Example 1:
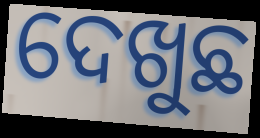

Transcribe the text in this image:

ଦେଖୁଛ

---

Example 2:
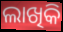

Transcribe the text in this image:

ଲାଖିକି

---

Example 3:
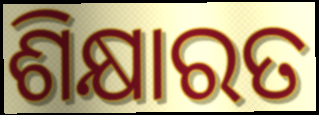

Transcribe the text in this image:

ଶିକ୍ଷାରତ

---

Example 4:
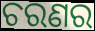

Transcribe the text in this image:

ଚରଣର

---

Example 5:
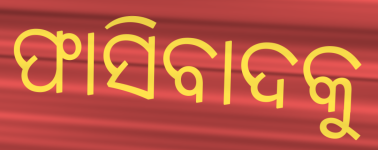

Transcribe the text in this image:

ଫାସିବାଦକୁ